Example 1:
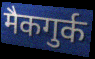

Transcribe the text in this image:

मैकगुर्क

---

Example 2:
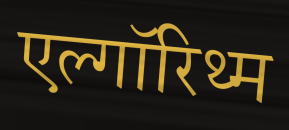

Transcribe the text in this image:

एल्गॉरिथ्म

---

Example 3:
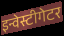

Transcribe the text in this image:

इन्वेस्टीगेटर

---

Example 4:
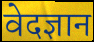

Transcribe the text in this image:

वेदज्ञान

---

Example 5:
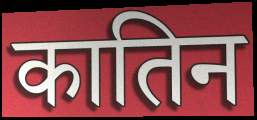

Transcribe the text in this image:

कातिन